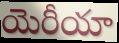
యెరీయా